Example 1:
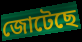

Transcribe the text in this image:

জোটেছে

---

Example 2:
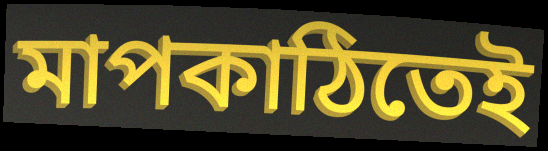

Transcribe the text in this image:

মাপকাঠিতেই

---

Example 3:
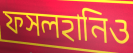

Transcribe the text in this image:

ফসলহানিও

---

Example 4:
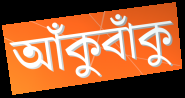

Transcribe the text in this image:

আঁকুবাঁকু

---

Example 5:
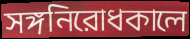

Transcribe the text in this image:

সঙ্গনিরোধকালে